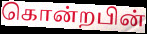
கொன்றபின்